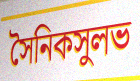
সৈনিকসুলভ